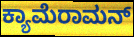
ಕ್ಯಾಮೆರಾಮನ್